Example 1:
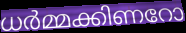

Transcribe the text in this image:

ധർമ്മക്കിണറോ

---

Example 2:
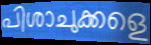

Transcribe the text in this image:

പിശാചുക്കളെ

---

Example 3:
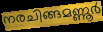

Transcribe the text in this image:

നരചിങ്ങമണ്ണൂർ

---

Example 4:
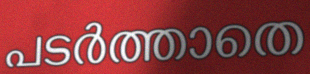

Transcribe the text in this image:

പടർത്താതെ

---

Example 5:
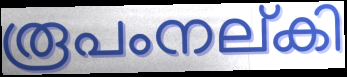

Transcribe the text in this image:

രൂപംനല്കി